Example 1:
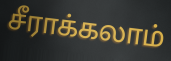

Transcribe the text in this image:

சீராக்கலாம்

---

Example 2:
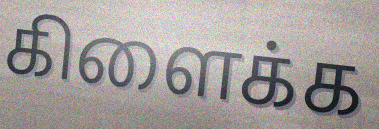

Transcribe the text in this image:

கிளைக்க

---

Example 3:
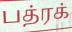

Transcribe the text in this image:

பத்ரக்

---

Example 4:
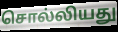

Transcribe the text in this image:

சொல்லியது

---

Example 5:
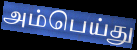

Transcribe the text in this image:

அம்பெய்து